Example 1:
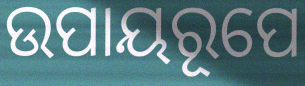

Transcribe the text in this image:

ଉପାୟରୂପେ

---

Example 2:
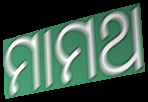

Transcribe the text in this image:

ମାମଥ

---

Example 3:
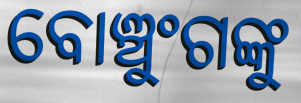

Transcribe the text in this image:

ବୋଞ୍ଚୁଂଗଙ୍କୁ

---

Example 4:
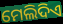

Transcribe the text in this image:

ମେଲିଦିଏ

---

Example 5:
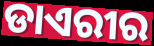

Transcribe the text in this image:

ଡାଏରୀର